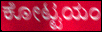
ಕೋಟ್ಟಯಂ